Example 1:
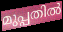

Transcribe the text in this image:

മുപ്പതിൽ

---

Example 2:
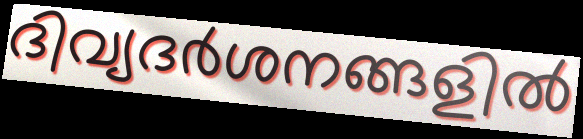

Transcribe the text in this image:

ദിവ്യദർശനങ്ങളിൽ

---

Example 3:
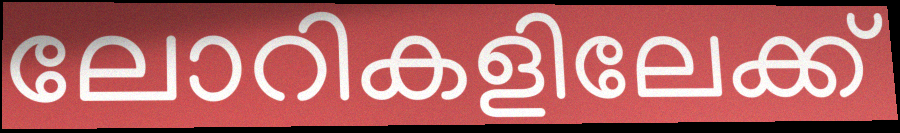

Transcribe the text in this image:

ലോറികളിലേക്ക്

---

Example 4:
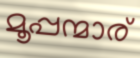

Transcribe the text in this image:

മൂപ്പന്മാര്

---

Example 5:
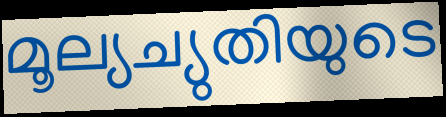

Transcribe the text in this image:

മൂല്യച്യുതിയുടെ